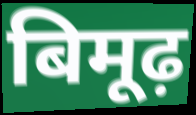
बिमूढ़